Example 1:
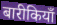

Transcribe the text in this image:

बारीकियाँ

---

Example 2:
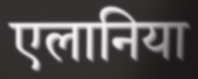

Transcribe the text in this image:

एलानिया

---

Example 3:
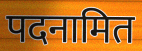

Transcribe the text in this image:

पदनामित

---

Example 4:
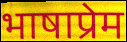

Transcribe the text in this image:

भाषाप्रेम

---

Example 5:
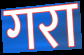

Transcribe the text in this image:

गरा